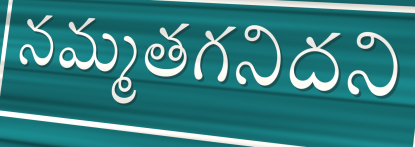
నమ్మతగనిదని